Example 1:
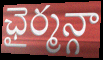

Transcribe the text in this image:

ఛైర్మన్గా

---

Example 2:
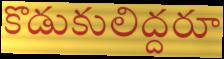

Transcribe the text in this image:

కొడుకులిద్దరూ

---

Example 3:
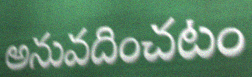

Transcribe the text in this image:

అనువదించటం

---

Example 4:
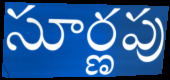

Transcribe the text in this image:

సూర్ణపు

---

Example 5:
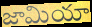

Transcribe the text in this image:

జామియా